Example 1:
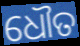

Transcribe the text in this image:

ଧୌତ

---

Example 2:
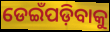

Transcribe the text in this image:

ଡେଇଁପଡ଼ିବାକୁ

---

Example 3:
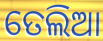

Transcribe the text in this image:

ତେଲିଆ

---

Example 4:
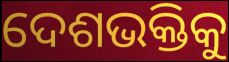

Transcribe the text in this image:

ଦେଶଭକ୍ତିକୁ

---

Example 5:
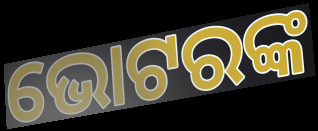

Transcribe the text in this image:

ଭୋଟରଙ୍କ